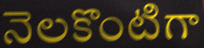
నెలకొంటిగా